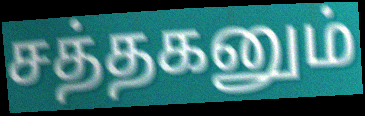
சத்தகனும்